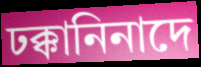
ঢক্কানিনাদে